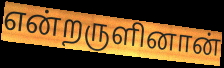
என்றருளினான்